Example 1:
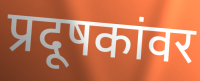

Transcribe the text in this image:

प्रदूषकांवर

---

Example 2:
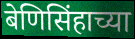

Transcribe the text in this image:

बेणिसिंहाच्या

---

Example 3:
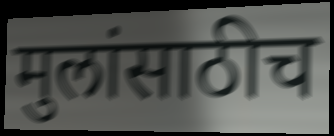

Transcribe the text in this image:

मुलांसाठीच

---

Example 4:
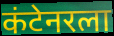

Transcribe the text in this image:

कंटेनरला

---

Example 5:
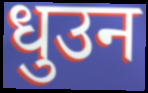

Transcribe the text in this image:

धुउन